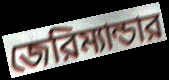
জেরিম্যান্ডার